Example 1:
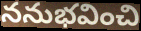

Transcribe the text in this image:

ననుభవించి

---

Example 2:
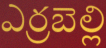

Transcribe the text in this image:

ఎర్రబెల్లి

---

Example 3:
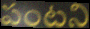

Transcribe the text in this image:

పంటని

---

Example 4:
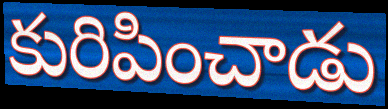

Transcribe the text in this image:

కురిపించాడు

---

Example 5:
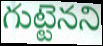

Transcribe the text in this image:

గుట్టెనని